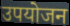
उपयोजन